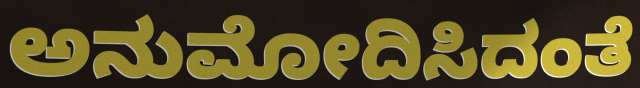
ಅನುಮೋದಿಸಿದಂತೆ